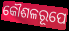
କୌଶଳରୂପେ